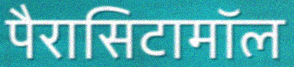
पैरासिटामॉल